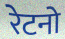
रेटनो